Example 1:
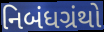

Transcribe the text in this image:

નિબંધગ્રંથો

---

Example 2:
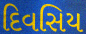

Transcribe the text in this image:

દિવસિય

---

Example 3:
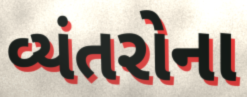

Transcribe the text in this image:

વ્યંતરોના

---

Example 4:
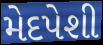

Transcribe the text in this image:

મેદપેશી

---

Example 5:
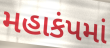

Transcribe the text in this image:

મહાકંપમાં